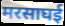
मरसाघई